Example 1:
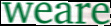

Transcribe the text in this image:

weare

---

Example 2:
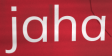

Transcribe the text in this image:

jaha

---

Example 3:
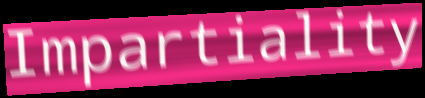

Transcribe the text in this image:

Impartiality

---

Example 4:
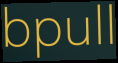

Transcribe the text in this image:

bpull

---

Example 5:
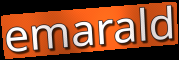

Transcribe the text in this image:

emarald